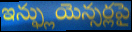
ఇన్ఫ్లుయెన్సర్లపై